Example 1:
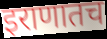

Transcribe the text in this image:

इराणातच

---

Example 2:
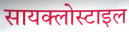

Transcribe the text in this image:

सायक्लोस्टाइल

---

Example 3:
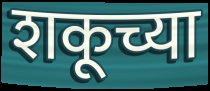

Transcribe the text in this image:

शकूच्या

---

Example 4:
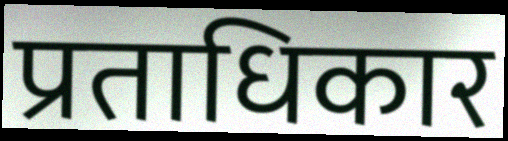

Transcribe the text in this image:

प्रताधिकार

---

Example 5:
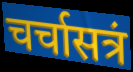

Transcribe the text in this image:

चर्चासत्रं